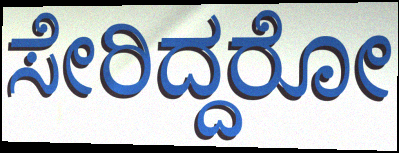
ಸೇರಿದ್ದರೋ